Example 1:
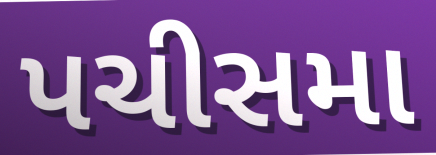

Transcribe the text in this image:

પચીસમા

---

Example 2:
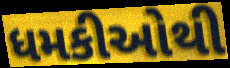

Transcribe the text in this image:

ધમકીઓથી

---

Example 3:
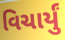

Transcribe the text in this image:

વિચાર્યું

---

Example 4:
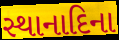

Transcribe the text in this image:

સ્થાનાદિના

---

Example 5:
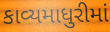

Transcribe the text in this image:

કાવ્યમાધુરીમાં